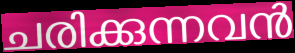
ചരിക്കുന്നവൻ